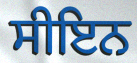
ਸੀਇਨ